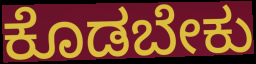
ಕೊಡಬೇಕು